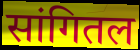
सांगितल